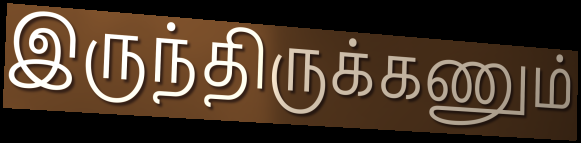
இருந்திருக்கணும்